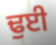
ਢੁਈ